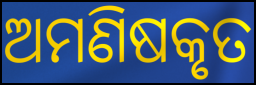
ଅମଣିଷକୃତ